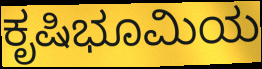
ಕೃಷಿಭೂಮಿಯ